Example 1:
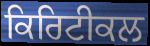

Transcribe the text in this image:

ਕਿਰਿਟੀਕਲ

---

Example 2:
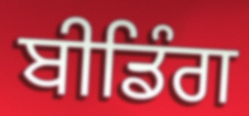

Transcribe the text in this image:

ਬੀਡਿੰਗ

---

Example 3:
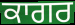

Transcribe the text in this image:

ਕਾਗਰ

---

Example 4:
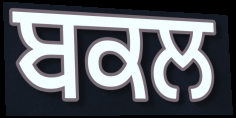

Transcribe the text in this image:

ਬਕਲ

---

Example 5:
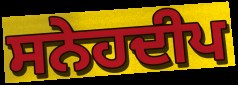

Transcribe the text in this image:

ਸਨੇਹਦੀਪ